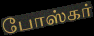
போஸ்கர்